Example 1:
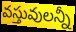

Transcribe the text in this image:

వస్తువులన్నీ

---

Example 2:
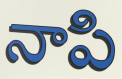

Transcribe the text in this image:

నాపి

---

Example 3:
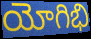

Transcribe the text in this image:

యోగిభి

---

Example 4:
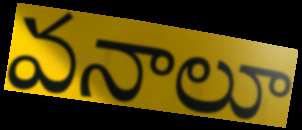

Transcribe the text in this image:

వనాలూ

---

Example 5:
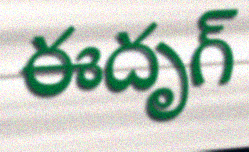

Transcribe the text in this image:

ఈదృగ్